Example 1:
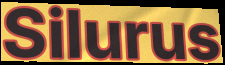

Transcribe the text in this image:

Silurus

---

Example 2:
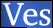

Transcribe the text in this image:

Ves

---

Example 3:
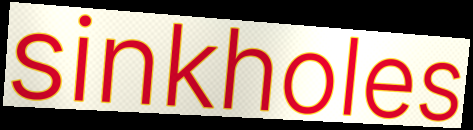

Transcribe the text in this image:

sinkholes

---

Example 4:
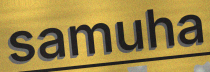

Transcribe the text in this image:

samuha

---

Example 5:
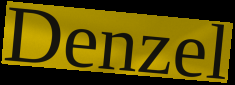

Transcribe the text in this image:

Denzel